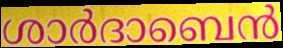
ശാർദാബെൻ